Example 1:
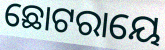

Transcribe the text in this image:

ଛୋଟରାୟେ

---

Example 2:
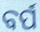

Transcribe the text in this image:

ବର୍ପ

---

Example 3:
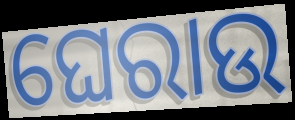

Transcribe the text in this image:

ଘେରାଉ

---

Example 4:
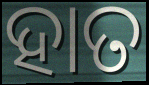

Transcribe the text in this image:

ହାତ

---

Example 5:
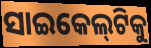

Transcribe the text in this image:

ସାଇକେଲ୍‌ଟିକୁ